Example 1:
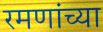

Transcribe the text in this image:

रमणांच्या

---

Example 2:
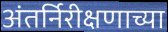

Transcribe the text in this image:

अंतर्निरीक्षणाच्या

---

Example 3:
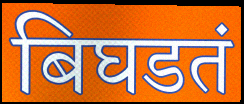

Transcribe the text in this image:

बिघडतं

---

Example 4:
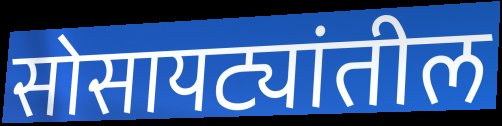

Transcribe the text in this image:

सोसायट्यांतील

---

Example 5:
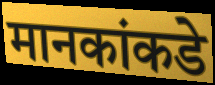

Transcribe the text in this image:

मानकांकडे